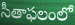
సీతాఫలంలో